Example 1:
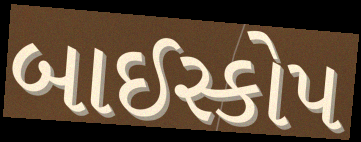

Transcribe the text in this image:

બાઈસ્કોપ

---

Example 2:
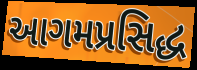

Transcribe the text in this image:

આગમપ્રસિદ્ધ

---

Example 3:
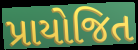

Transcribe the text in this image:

પ્રાયોજિત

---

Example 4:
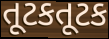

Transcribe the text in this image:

તૂટકતૂટક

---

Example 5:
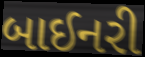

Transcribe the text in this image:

બાઈનરી